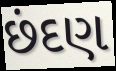
છંદણ